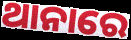
ଥାନାରେ